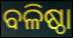
ବଳିଷ୍ଠା